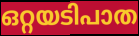
ഒറ്റയടിപാത